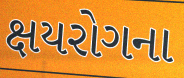
ક્ષયરોગના